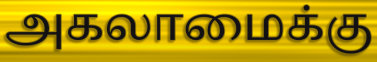
அகலாமைக்கு